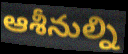
ఆశీనుల్ని